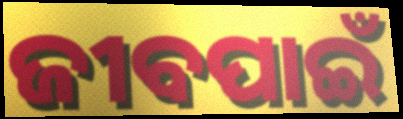
ଜୀବପାଇଁ